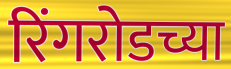
रिंगरोडच्या